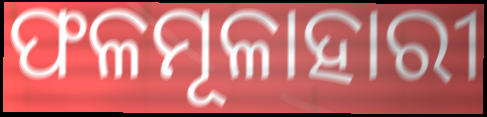
ଫଳମୂଳାହାରୀ